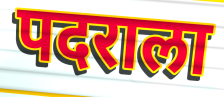
पदराला